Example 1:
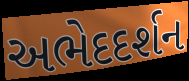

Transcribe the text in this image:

અભેદદર્શન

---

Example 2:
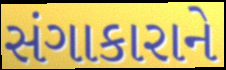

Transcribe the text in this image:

સંગાકારાને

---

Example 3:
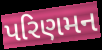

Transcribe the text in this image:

પરિણમન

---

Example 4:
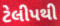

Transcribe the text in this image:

ટેલીપથી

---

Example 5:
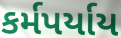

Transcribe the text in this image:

કર્મપર્યાય